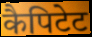
कैपिटेट